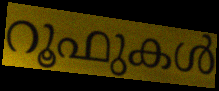
റൂഫുകൾ